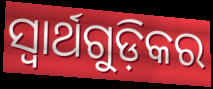
ସ୍ୱାର୍ଥଗୁଡ଼ିକର